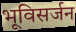
भूविसर्जन